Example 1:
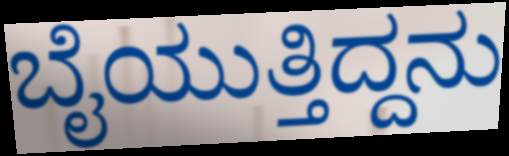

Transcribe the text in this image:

ಬೈಯುತ್ತಿದ್ದನು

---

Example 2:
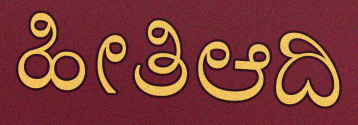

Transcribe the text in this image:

ಹೀತಿಆದಿ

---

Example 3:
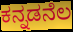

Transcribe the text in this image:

ಕನ್ನಡನೆಲ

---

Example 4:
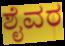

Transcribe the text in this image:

ಶೈವರ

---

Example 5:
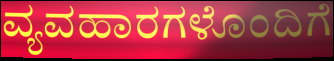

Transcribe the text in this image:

ವ್ಯವಹಾರಗಳೊಂದಿಗೆ